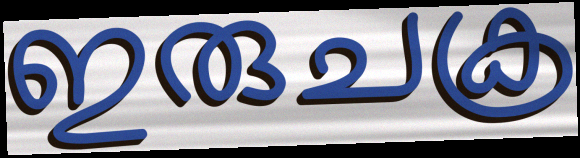
ഇരുചക്ര